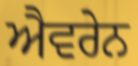
ਐਵਰੇਨ